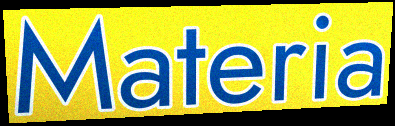
Materia